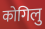
कोगिलु